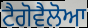
ਟੈਗੋਵੈਲੋਆ